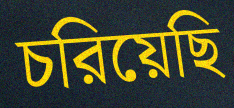
চরিয়েছি